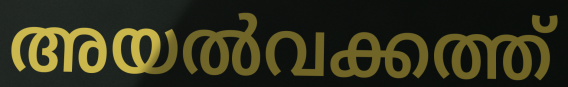
അയൽവക്കത്ത്